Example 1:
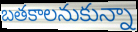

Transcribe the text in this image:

బతకాలనుకున్నా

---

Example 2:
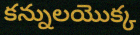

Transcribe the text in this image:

కన్నులయొక్క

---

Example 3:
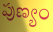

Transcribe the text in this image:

పుణ్యం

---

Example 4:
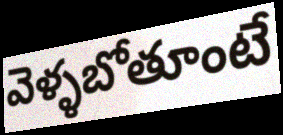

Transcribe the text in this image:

వెళ్ళబోతూంటే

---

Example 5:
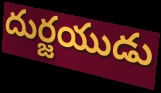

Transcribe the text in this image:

దుర్జయుడు